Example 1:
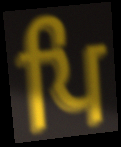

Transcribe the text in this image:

ਪਿ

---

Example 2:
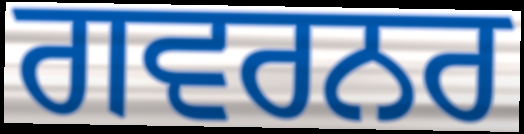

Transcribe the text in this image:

ਗਵਰਨਰ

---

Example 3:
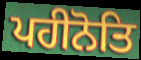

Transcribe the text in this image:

ਪਹੀਨੋਤਿ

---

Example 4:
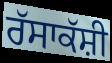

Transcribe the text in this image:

ਰੱਸਾਕੱਸ਼ੀ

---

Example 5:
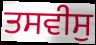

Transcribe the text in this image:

ਤਸਵੀਸੁ